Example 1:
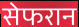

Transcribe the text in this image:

सेफरान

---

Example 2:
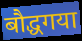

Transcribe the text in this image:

बौद्धगया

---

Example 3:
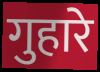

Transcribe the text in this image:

गुहारे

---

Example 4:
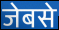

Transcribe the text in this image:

जेबसे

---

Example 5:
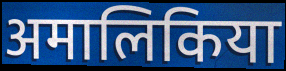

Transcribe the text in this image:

अमालिकिया